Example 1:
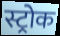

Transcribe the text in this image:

स्ट्रोक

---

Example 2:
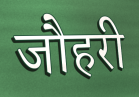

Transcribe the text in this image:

जौहरी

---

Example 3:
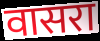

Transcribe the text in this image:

वासरा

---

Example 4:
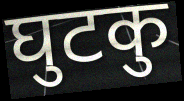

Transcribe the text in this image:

घुटकु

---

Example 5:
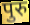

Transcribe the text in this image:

पुरु